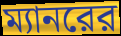
ম্যানরের